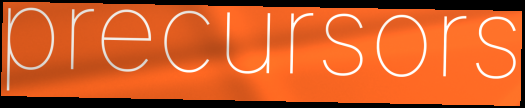
precursors